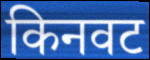
किनवट